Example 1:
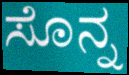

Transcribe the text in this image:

ಸೊನ್ನ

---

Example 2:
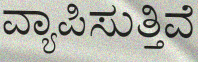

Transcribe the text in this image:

ವ್ಯಾಪಿಸುತ್ತಿವೆ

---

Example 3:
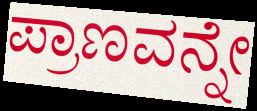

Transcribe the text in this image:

ಪ್ರಾಣವನ್ನೇ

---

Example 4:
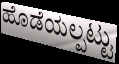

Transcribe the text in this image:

ಹೊಡೆಯಲ್ಪಟ್ಟು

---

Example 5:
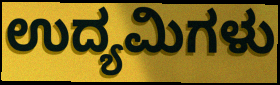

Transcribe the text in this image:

ಉದ್ಯಮಿಗಳು